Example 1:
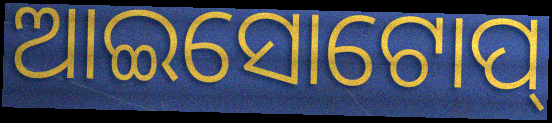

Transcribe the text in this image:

ଆଇସୋଟୋପ୍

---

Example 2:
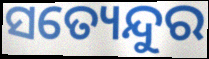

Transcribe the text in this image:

ସତ୍ୟେନ୍ଦୁର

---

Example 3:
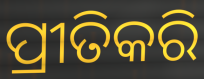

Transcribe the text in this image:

ପ୍ରୀତିକରି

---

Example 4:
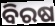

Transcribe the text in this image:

ବିରଷ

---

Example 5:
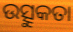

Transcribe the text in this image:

ଉତ୍ସୁକତା